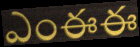
ఎంఈఈ